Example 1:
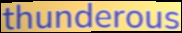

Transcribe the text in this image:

thunderous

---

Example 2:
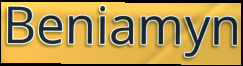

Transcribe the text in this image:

Beniamyn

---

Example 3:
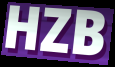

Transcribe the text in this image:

HZB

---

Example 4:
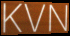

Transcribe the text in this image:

KVN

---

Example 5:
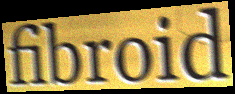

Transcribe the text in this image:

fibroid